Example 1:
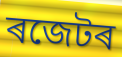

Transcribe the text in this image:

ৰজেটৰ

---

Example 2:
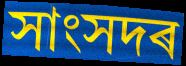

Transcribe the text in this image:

সাংসদৰ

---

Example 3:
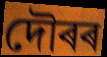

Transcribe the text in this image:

দৌৰৰ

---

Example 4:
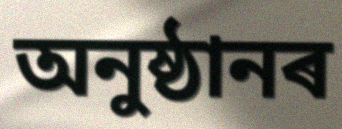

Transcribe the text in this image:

অনুষ্ঠানৰ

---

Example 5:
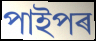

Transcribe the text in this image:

পাইপৰ